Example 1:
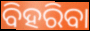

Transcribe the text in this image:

ବିହରିବା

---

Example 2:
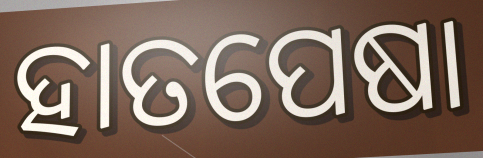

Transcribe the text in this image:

ହାତପେଷା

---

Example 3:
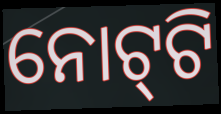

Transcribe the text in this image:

ନୋଟ୍‌ଟି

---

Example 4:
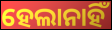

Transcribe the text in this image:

ହେଲାନାହିଁ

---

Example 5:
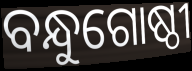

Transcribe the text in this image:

ବନ୍ଧୁଗୋଷ୍ଠୀ